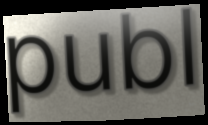
publ